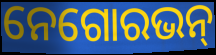
ନେଗୋରଭନ୍